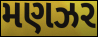
મણઝર